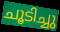
ചൂടിച്ചു